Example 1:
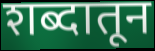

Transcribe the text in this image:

शब्दातून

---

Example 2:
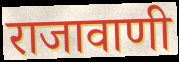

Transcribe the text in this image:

राजावाणी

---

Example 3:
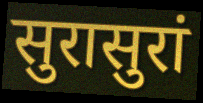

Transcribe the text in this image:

सुरासुरां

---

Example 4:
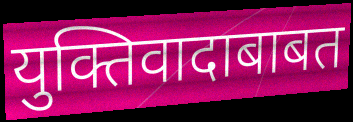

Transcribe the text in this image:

युक्तिवादाबाबत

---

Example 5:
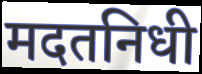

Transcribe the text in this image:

मदतनिधी